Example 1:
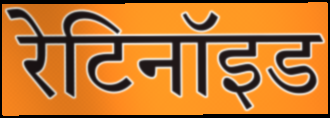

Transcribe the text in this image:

रेटिनॉइड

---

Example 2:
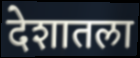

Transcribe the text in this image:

देशातला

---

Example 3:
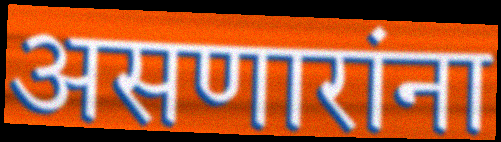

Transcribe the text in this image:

असणारांना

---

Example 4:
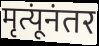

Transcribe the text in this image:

मृत्यूंनंतर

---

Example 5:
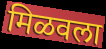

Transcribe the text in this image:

मिळवला